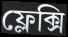
ফ্লেক্সি